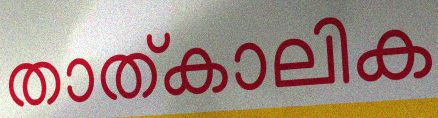
താത്കാലിക